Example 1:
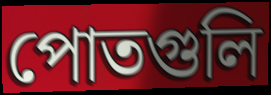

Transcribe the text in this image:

পোতগুলি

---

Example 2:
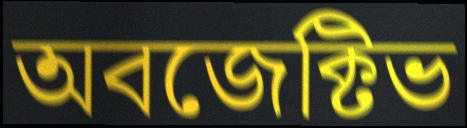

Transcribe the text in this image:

অবজেক্টিভ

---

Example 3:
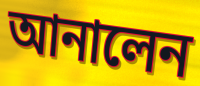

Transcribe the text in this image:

আনালেন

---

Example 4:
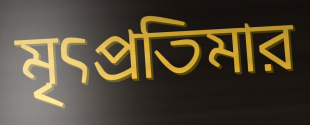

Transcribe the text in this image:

মৃৎপ্রতিমার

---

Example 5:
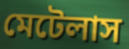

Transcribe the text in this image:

মেটেলাস